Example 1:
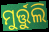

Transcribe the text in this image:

ମୁର୍ତ୍ତୁଲି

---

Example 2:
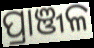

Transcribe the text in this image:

ପ୍ରାଞ୍ଜଳ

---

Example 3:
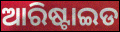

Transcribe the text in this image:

ଆରିଷ୍ଟାଇଡ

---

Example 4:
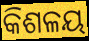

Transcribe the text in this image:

କିଶଳୟ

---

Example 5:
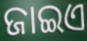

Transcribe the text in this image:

ଜାଇଏ